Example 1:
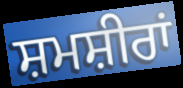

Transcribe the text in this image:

ਸ਼ਮਸ਼ੀਰਾਂ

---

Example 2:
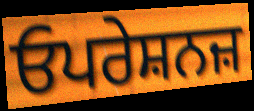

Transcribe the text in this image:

ਓਪਰੇਸ਼ਨਜ਼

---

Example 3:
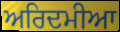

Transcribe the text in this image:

ਅਰਿਦਮੀਆ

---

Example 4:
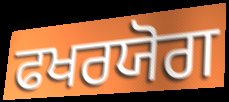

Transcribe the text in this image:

ਫਖਰਯੋਗ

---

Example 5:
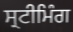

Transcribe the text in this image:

ਸ੍ਰਟੀਮਿੰਗ